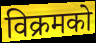
विक्रमको